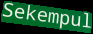
Sekempul